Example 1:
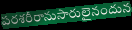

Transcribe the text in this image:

పరశరీరానుసారులైనందున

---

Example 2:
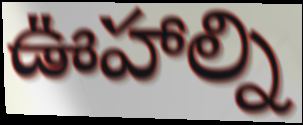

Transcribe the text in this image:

ఊహాల్ని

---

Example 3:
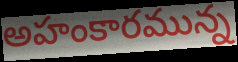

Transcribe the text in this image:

అహంకారమున్న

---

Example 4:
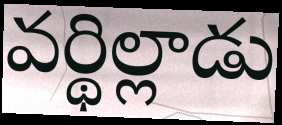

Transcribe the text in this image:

వర్థిల్లాడు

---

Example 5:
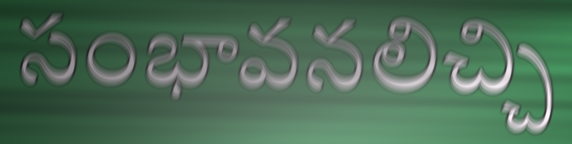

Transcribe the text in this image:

సంభావనలిచ్చి